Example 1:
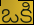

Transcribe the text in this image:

ఒకి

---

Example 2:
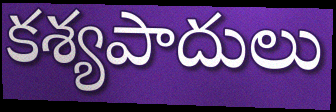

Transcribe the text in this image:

కశ్యపాదులు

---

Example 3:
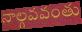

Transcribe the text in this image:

నాల్గవవంతు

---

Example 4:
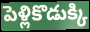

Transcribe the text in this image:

పెళ్లికొడుక్కి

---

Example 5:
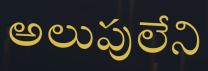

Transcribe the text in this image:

అలుపులేని